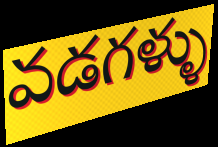
వడగళ్ళు